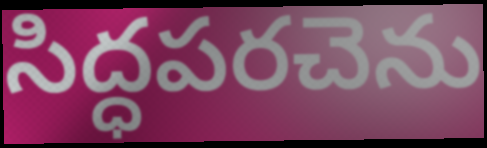
సిద్ధపరచెను